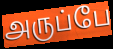
அருப்பே